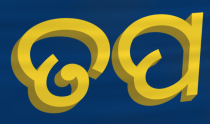
ତପ